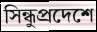
সিন্ধুপ্রদেশে